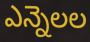
ఎన్నెలల